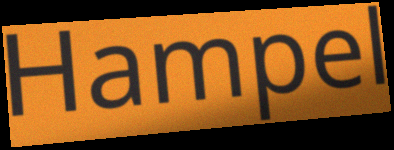
Hampel